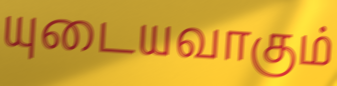
யுடையவாகும்